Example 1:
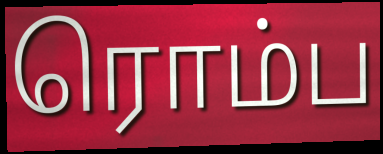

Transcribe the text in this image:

ரொம்ப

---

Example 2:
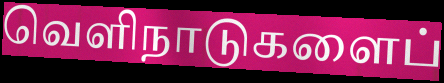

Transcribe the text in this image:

வெளிநாடுகளைப்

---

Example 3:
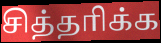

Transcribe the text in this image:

சித்தரிக்க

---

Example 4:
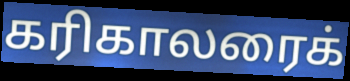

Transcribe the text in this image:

கரிகாலரைக்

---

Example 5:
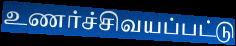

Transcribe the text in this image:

உணர்ச்சிவயப்பட்டு